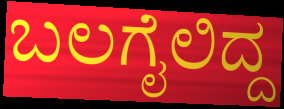
ಬಲಗೈಲಿದ್ದ